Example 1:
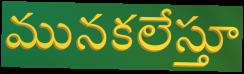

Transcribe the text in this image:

మునకలేస్తూ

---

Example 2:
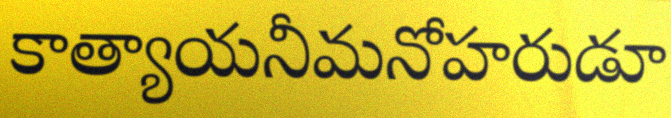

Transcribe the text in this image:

కాత్యాయనీమనోహరుడూ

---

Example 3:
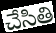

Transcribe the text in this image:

చేసితి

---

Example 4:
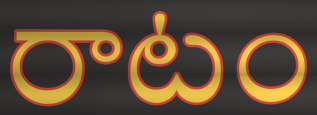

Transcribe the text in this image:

రాటం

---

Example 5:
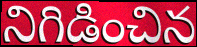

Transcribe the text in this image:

నిగిడించిన